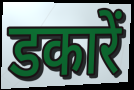
डकारें